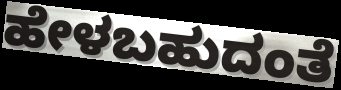
ಹೇಳಬಹುದಂತೆ